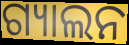
ଗ୍ୟାଲନ